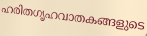
ഹരിതഗൃഹവാതകങ്ങളുടെ